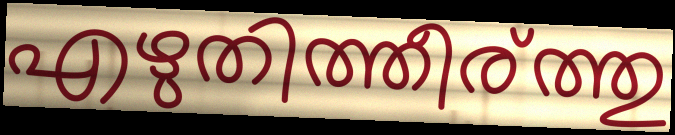
എഴുതിത്തീര്ത്തു